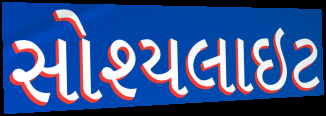
સોશ્યલાઇટ